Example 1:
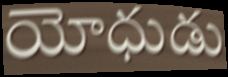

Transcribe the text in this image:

యోధుడు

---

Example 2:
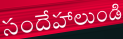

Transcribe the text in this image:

సందేహాలుండి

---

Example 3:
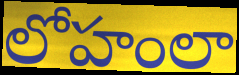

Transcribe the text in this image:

లోహంలా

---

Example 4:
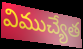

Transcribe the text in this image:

విముచ్యేత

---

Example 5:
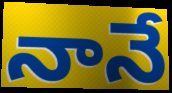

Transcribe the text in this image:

నానే